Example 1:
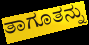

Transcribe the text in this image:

ತಾಗೂತನ್ನು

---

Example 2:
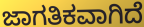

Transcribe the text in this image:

ಜಾಗತಿಕವಾಗಿದೆ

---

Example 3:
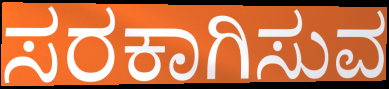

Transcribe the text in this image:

ಸರಕಾಗಿಸುವ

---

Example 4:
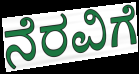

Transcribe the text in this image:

ನೆರವಿಗೆ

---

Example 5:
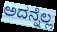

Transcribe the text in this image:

ಅದನ್ನೆಲ್ಲ